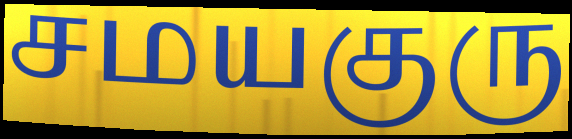
சமயகுரு